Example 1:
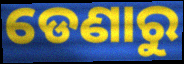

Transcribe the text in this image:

ଡେଣାରୁ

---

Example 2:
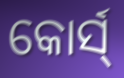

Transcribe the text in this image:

କୋର୍ସ୍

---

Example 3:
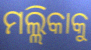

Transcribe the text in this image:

ମଲ୍ଲିକାକୁ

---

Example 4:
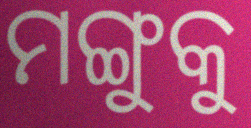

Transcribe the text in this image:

ମଙ୍ଗୁକୁ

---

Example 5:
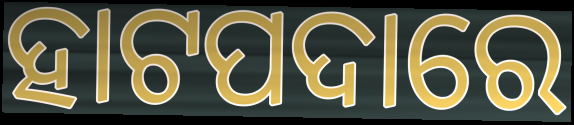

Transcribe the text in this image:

ହାଟପଦାରେ